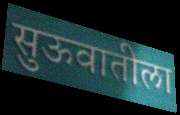
सुऊवातीला